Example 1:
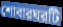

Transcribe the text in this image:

শোবারঘরটি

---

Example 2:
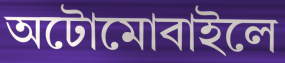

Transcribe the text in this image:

অটোমোবাইলে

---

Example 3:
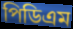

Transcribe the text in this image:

পিডিএম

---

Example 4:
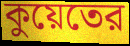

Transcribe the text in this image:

কুয়েতের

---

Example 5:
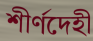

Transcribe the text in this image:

শীর্ণদেহী